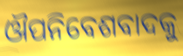
ଔପନିବେଶବାଦକୁ